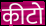
कीटो